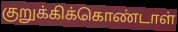
குறுக்கிக்கொண்டாள்